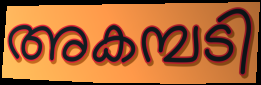
അകമ്പടി